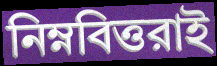
নিম্নবিত্তরাই